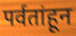
पर्वतांहून